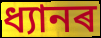
ধ্যানৰ